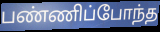
பண்ணிப்போந்த